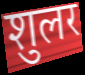
शुलर